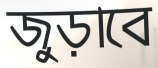
জুড়াবে